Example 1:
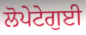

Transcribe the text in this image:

ਲੋਪੇਟੇਗੁਈ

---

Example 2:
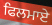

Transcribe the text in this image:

ਫਿਲਮਾਏ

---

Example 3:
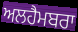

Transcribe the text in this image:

ਅਲਹੈਮਬਰਾ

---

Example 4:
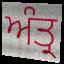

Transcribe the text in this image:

ਅੰਤ੍ਰ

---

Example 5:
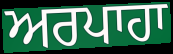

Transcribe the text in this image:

ਅਰਪਾਹਾ